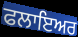
ਫਲਾਇਅਰ